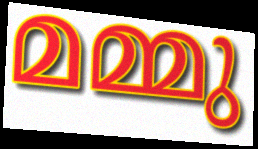
മമ്മു